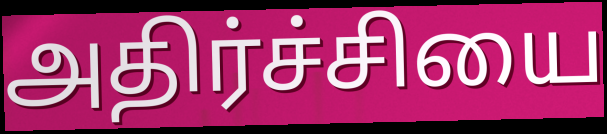
அதிர்ச்சியை